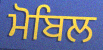
ਮੋਬਿਲ